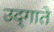
उद्‌गाते